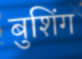
बुशिंग